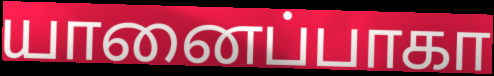
யானைப்பாகா